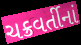
ચક્રવર્તીનાં